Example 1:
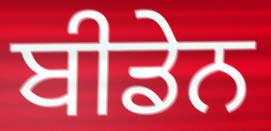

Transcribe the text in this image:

ਬੀਡੇਨ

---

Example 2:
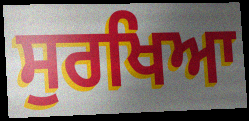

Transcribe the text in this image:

ਸੁਰਖਿਆ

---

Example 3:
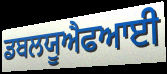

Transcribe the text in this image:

ਡਬਲਯੂਐਫਆਈ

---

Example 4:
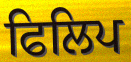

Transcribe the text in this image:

ਫਿਲਿਪ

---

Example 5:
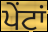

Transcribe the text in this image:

ਪੇਂਟਾਂ